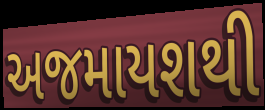
અજમાયશથી